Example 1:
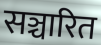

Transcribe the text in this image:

सञ्चारित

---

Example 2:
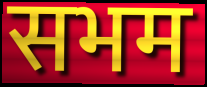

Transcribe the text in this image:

सभम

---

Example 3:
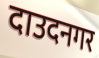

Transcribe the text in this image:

दाउदनगर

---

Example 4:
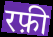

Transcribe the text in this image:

रफ़ी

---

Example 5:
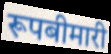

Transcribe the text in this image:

रूपबीमारी